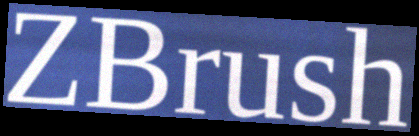
ZBrush